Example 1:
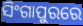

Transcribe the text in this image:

ସିଂଗାପୁରରେ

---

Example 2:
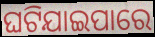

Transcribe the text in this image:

ଘଟିଯାଇପାରେ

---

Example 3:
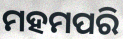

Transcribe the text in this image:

ମହମପରି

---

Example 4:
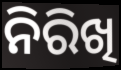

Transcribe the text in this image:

ନିରିଖି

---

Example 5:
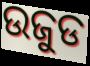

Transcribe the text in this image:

ଉଜୁଡ